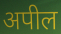
अपील